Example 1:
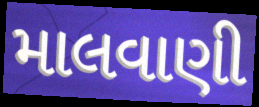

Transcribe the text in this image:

માલવાણી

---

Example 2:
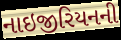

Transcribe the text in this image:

નાઇજીરિયનની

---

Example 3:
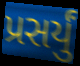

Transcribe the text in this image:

પ્રસર્યું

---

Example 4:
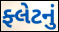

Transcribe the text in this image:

ફ્લેટનું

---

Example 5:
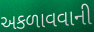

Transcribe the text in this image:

અકળાવવાની